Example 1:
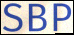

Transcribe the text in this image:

SBP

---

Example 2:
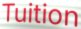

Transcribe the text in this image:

Tuition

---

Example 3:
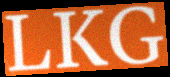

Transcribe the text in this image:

LKG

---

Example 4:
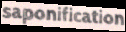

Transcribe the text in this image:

saponification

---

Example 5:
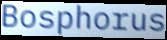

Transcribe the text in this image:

Bosphorus